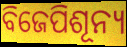
ବିଜେପିଶୂନ୍ୟ